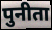
पुनीता